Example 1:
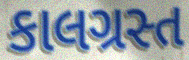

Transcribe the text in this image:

કાલગ્રસ્ત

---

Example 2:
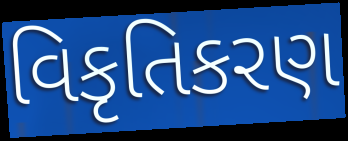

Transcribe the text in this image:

વિકૃતિકરણ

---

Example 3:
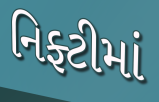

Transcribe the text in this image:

નિફ્ટીમાં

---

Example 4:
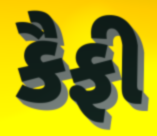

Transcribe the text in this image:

કૈફી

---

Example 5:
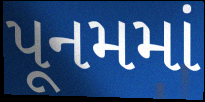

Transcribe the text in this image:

પૂનમમાં